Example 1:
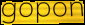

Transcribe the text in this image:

gopon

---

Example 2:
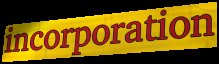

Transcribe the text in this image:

incorporation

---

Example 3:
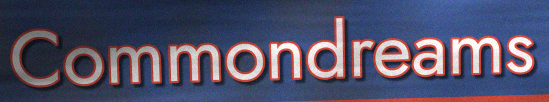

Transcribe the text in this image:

Commondreams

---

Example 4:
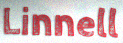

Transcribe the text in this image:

Linnell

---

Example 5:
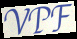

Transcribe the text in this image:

VPF